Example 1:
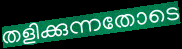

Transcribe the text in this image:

തളിക്കുന്നതോടെ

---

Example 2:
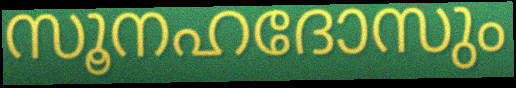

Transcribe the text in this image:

സൂനഹദോസും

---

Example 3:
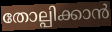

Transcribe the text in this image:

തോല്പിക്കാൻ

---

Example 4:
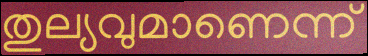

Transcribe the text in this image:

തുല്യവുമാണെന്ന്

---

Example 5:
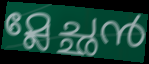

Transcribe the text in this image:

മ്ലേച്ഛൻ